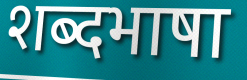
शब्दभाषा